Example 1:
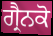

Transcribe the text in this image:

ਗ੍ਰੈਨਕੋ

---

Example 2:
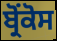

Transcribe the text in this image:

ਬ੍ਰੋਂਕੋਸ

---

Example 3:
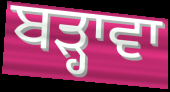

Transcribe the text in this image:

ਬੜ੍ਹਾਵਾ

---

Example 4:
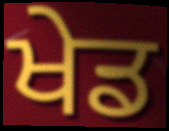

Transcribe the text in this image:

ਖੇਡ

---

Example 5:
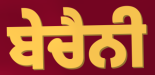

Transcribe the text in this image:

ਬੇਚੈਨੀ